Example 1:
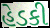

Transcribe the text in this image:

હેડકી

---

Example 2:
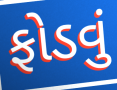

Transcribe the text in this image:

ફોડવું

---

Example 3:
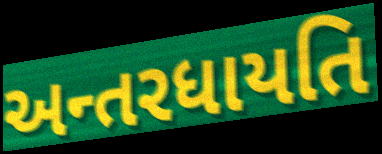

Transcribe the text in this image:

અન્તરધાયતિ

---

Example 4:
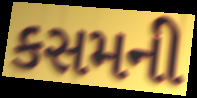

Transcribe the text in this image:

કસમની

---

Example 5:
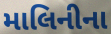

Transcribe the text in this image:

માલિનીના